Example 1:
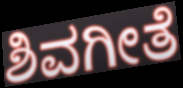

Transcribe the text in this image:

ಶಿವಗೀತೆ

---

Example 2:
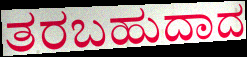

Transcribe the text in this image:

ತರಬಹುದಾದ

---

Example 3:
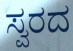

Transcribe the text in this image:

ಸ್ವರದ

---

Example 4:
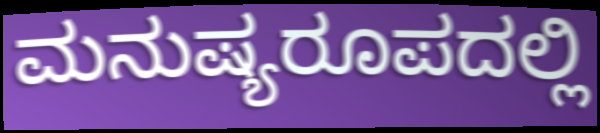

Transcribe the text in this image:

ಮನುಷ್ಯರೂಪದಲ್ಲಿ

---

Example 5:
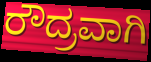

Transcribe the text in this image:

ರೌದ್ರವಾಗಿ